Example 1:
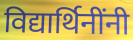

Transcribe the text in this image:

विद्यार्थिनींनी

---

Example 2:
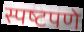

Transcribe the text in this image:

स्‍पष्‍टपणे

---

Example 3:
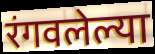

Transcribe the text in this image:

रंगवलेल्या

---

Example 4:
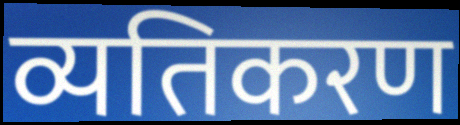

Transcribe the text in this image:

व्यतिकरण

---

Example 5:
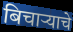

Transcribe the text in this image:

बिचाऱ्याचे